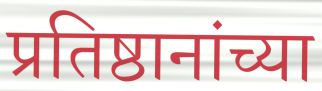
प्रतिष्ठानांच्या